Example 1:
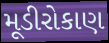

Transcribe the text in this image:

મૂડીરોકાણ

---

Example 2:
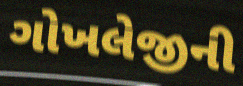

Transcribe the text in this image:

ગોખલેજીની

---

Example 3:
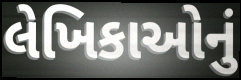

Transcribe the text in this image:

લેખિકાઓનું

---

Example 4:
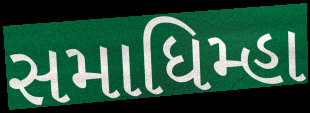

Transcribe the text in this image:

સમાધિમ્હા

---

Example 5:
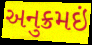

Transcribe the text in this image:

અનુક્રમઇં